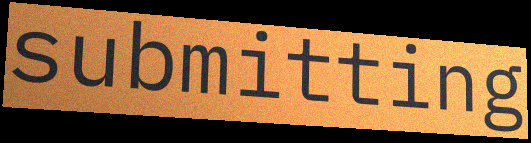
submitting